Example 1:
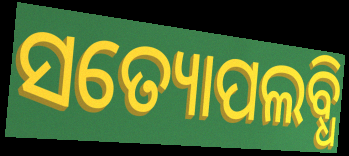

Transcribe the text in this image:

ସତ୍ୟୋପଲବ୍ଧି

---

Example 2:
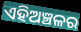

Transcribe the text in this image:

ଏହିଅଞ୍ଚଳର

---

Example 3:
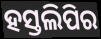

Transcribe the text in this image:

ହସ୍ତଲିପିର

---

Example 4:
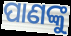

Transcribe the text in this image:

ପାଣଙ୍କୁ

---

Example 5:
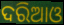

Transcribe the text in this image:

ଦରିଆଓ